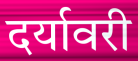
दर्यावरी